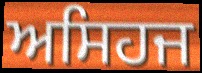
ਅਸਿਹਜ